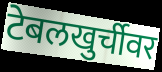
टेबलखुर्चीवर